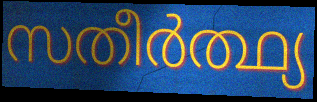
സതീർത്ഥ്യ